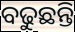
ବଢୁଛନ୍ତି